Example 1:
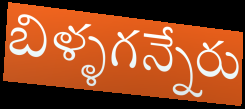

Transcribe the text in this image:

బిళ్ళగన్నేరు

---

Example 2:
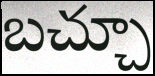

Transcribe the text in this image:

బచ్చూ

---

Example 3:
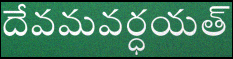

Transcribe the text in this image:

దేవమవర్ధయత్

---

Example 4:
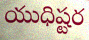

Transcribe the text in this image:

యుధిష్టర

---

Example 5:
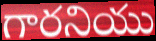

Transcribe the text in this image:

గారనియు